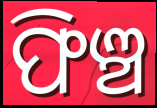
ଫିଞ୍ଚ